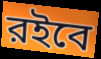
রইবে